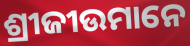
ଶ୍ରୀଜୀଉମାନେ